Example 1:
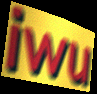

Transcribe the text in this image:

iwu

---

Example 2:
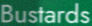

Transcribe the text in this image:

Bustards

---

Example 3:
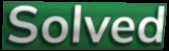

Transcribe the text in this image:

Solved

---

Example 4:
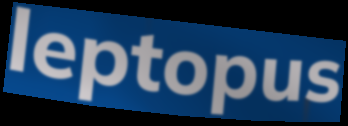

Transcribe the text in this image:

leptopus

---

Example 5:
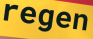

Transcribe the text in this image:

regen